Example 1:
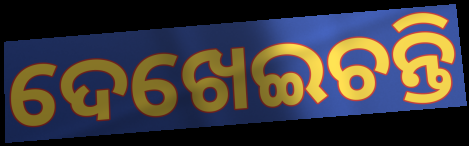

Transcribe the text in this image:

ଦେଖେଇଚନ୍ତି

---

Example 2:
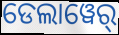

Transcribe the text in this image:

ଡେଲାୱେର୍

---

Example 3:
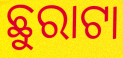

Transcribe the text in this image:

ଛୁରାଟା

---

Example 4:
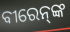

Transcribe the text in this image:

ବୀରେନ୍‍ଙ୍କ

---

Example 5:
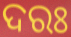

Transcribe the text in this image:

ଦରଃ